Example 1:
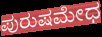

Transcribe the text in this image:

ಪುರುಷಮೇಧ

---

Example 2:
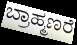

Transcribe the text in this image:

ಬ್ರಾಹ್ಮಣರೆ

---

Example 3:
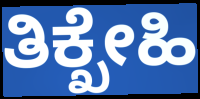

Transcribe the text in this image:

ತಿಕ್ಖೇಹಿ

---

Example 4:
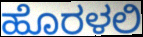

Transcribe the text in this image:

ಹೊರಳಲಿ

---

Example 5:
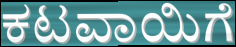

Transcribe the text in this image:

ಕಟವಾಯಿಗೆ